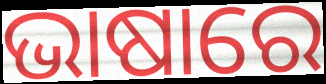
ଭାଷାରେ